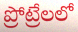
ప్రోట్రేలలో